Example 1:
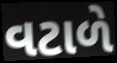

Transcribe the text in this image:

વટાળે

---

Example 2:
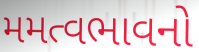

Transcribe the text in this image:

મમત્વભાવનો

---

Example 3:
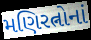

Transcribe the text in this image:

મણિરત્નોનાં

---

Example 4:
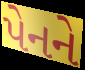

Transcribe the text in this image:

પેનને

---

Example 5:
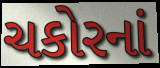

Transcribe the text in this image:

ચકોરનાં